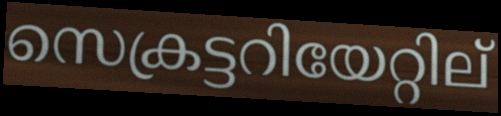
സെക്രട്ടറിയേറ്റില്